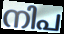
നിപ